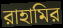
রাহামির